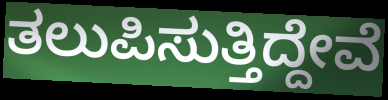
ತಲುಪಿಸುತ್ತಿದ್ದೇವೆ